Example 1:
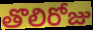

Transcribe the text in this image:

తొలిరోజు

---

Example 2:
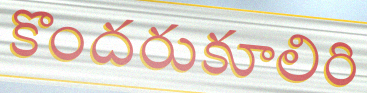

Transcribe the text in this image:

కొందరుకూలిరి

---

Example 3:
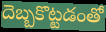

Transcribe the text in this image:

దెబ్బకొట్టడంతో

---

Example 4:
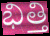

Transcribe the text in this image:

భిత్తి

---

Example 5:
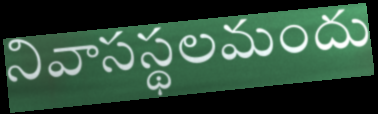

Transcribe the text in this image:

నివాసస్థలమందు